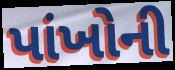
પાંખોની